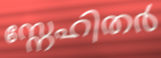
സ്നേഹിതർ